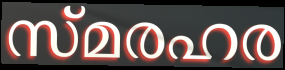
സ്മരഹര